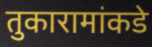
तुकारामांकडे